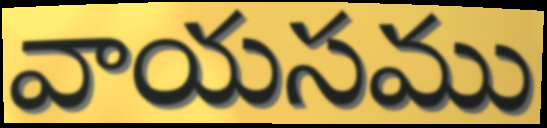
వాయసము